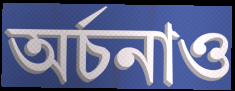
অর্চনাও